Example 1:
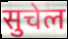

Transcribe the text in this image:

सुचेल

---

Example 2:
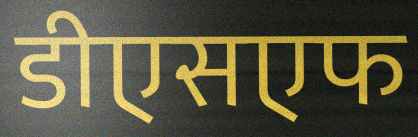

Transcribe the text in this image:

डीएसएफ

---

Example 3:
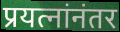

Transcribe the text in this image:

प्रयत्नांनंतर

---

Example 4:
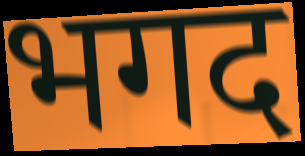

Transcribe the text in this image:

भगद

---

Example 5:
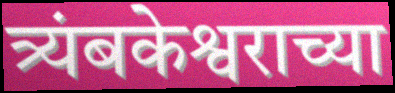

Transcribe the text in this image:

त्र्यंबकेश्वराच्या